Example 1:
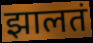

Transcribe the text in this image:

झालतं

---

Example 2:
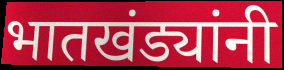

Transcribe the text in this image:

भातखंड्यांनी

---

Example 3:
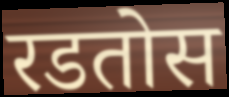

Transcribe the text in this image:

रडतोस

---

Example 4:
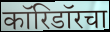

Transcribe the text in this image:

कॉरिडॉरचा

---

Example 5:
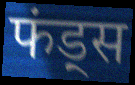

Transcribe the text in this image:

फंड्‌स